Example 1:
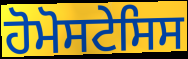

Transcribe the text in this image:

ਹੋਮੋਸਟੇਸਿਸ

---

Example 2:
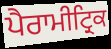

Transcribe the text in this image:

ਪੈਰਾਮੀਟ੍ਰਿਕ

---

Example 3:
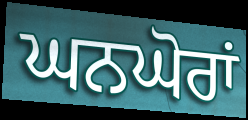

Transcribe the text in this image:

ਘਨਘੋਰਾਂ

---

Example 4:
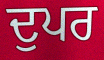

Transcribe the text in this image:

ਦੁਪਰ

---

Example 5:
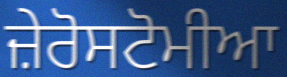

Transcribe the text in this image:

ਜ਼ੇਰੋਸਟੋਮੀਆ